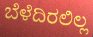
ಬೆಳೆದಿರಲಿಲ್ಲ